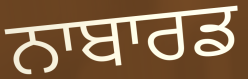
ਨਾਬਾਰਡ